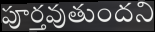
పూర్తవుతుందని